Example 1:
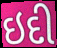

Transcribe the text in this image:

ઇદી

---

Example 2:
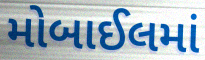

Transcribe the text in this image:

મોબાઈલમાં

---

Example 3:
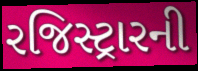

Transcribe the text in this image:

રજિસ્ટ્રારની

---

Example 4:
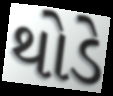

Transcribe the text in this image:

થોડે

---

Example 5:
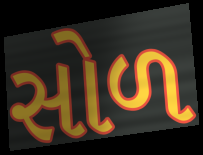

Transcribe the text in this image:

સોળ